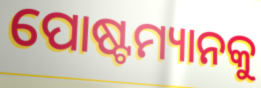
ପୋଷ୍ଟମ୍ୟାନକୁ